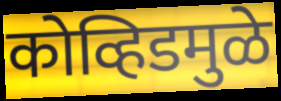
कोव्हिडमुळे